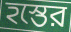
হস্তের